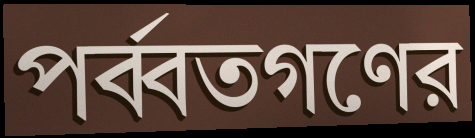
পর্ব্বতগণের